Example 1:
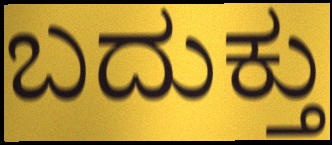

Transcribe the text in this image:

ಬದುಕ್ತು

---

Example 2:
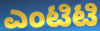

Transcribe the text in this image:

ಎಂಟಿಟಿ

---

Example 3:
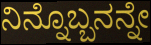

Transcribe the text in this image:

ನಿನ್ನೊಬ್ಬನನ್ನೇ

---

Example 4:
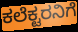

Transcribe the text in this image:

ಕಲೆಕ್ಟರನಿಗೆ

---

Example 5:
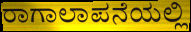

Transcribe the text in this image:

ರಾಗಾಲಾಪನೆಯಲ್ಲಿ